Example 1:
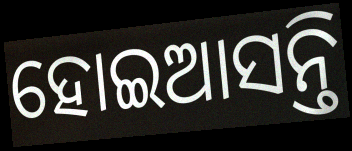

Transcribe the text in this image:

ହୋଇଆସନ୍ତି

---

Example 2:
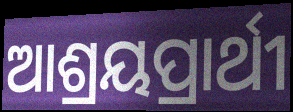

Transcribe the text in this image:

ଆଶ୍ରୟପ୍ରାର୍ଥୀ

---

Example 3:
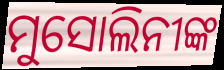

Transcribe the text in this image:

ମୁସୋଲିନୀଙ୍କ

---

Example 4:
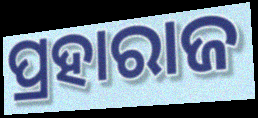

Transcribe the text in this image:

ପ୍ରହାରାଜ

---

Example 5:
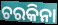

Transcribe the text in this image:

ଚରକିନା